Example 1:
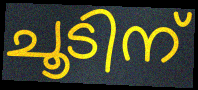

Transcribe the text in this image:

ചൂടിന്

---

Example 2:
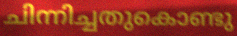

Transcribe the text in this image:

ചിന്നിച്ചതുകൊണ്ടു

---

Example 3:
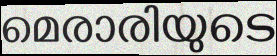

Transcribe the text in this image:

മെരാരിയുടെ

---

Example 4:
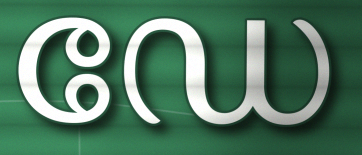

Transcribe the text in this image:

ഡേ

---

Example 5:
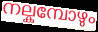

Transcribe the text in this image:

നല്കുമ്പോഴും